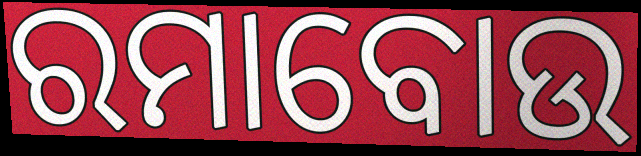
ରମାବୋଉ